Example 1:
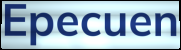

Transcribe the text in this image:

Epecuen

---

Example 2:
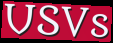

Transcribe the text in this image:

USVs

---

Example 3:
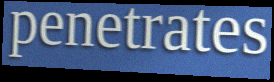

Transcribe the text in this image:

penetrates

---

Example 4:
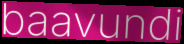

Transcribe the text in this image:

baavundi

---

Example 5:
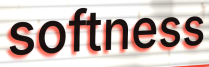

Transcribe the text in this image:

softness